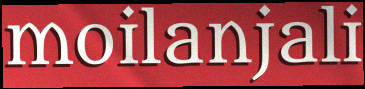
moilanjali